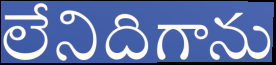
లేనిదిగాను